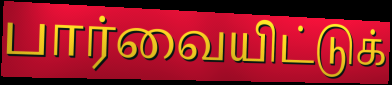
பார்வையிட்டுக்